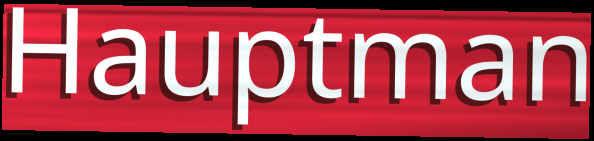
Hauptman